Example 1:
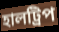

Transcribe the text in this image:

হালট্রিপ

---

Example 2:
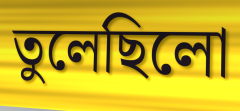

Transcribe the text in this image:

তুলেছিলো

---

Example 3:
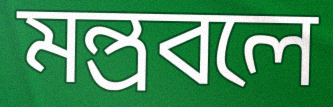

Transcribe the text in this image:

মন্ত্রবলে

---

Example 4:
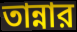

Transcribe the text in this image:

তান্নার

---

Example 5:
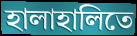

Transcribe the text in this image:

হালাহালিতে